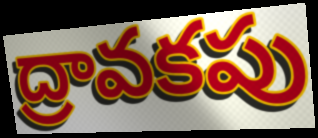
ద్రావకపు